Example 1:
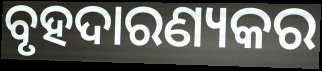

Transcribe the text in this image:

ବୃହଦାରଣ୍ୟକର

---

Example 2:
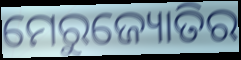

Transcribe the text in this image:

ମେରୁଜ୍ୟୋତିର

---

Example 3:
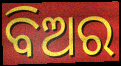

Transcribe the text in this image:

ବିଅର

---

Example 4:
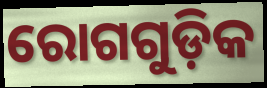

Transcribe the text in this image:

ରୋଗଗୁଡ଼ିକ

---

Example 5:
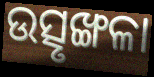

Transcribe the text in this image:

ଉତ୍ସୃଙ୍ଖଳା